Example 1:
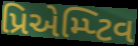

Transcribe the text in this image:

પ્રિએમ્પ્ટિવ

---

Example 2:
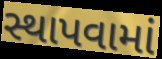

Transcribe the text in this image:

સ્થાપવામાં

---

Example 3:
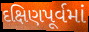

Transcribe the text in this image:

દક્ષિણપૂર્વમાં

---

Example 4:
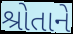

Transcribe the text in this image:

શ્રોતાને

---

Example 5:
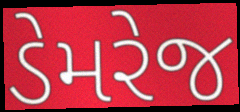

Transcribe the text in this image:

ડેમરેજ